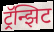
ट्रॅन्झिट